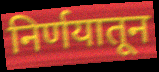
निर्णयातून